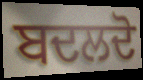
ਬਦਲਦੋ